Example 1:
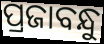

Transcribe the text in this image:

ପ୍ରଜାବନ୍ଧୁ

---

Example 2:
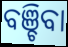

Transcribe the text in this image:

ବଞ୍ଚିବା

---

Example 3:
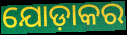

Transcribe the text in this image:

ଯୋଡ଼ାକର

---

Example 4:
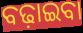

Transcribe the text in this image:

ବଢ଼ାଇବା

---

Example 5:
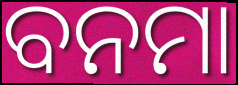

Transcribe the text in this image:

ବନମା